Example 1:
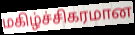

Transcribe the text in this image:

மகிழ்ச்சிகரமான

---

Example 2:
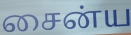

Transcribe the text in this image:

சைன்ய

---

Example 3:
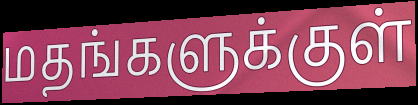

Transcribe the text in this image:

மதங்களுக்குள்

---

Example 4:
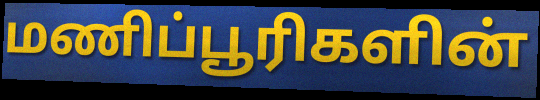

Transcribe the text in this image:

மணிப்பூரிகளின்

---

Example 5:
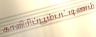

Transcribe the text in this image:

காவிரிப்பூம்பட்டிணம்